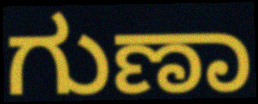
ಗುಣಾ